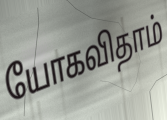
யோகவிதாம்